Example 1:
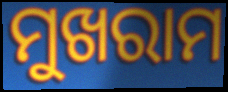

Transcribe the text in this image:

ମୁଖରାମ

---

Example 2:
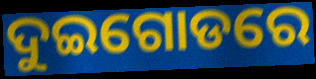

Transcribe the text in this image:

ଦୁଇଗୋଡରେ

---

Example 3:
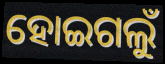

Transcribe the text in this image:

ହୋଇଗଲୁଁ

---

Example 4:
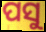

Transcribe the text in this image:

ପସୁ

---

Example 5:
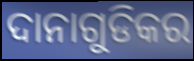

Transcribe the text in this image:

ଦାନାଗୁଡିକର